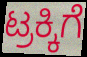
ಟ್ರಕ್ಕಿಗೆ